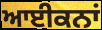
ਆਈਕਨਾਂ